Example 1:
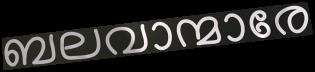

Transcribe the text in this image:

ബലവാന്മാരേ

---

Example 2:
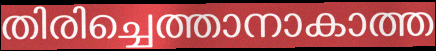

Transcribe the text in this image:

തിരിച്ചെത്താനാകാത്ത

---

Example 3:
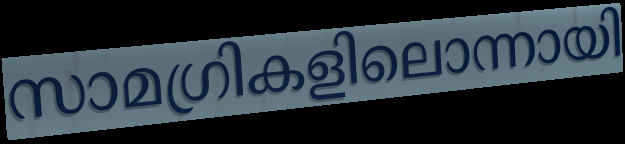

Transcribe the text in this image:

സാമഗ്രികളിലൊന്നായി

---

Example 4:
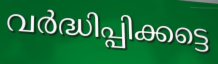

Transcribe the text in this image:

വർദ്ധിപ്പിക്കട്ടെ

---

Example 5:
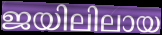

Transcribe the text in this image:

ജയിലിലായ